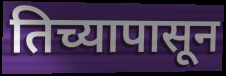
तिच्यापासून